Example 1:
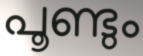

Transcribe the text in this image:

പൂണ്ടും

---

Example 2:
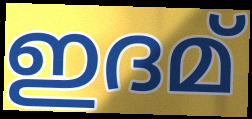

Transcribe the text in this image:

ഇദമ്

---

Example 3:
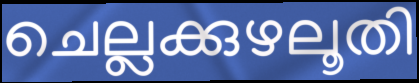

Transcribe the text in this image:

ചെല്ലക്കുഴലൂതി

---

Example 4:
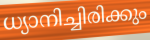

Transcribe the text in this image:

ധ്യാനിച്ചിരിക്കും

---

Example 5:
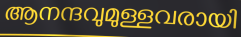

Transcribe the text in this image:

ആനന്ദവുമുള്ളവരായി